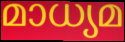
മാധ്യമ